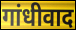
गांधीवाद